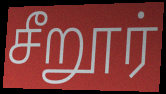
சீறூர்